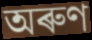
অৰুণ